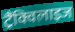
ट्रैंक्विलाइज